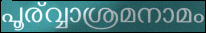
പൂര്വ്വാശ്രമനാമം